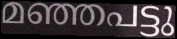
മഞ്ഞപട്ടു